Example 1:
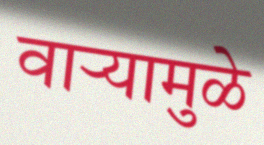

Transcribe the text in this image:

वाऱ्यामुळे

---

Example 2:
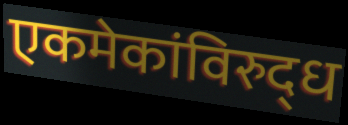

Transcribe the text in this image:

एकमेकांविरुद्ध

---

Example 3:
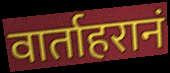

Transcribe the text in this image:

वार्ताहरानं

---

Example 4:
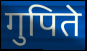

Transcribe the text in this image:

गुपिते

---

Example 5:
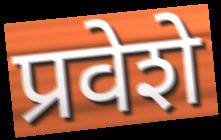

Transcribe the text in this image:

प्रवेशे